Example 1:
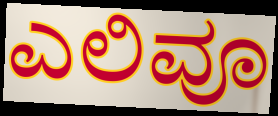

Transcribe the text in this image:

ಎಲಿವೂ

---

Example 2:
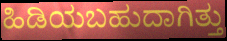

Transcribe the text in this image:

ಹಿಡಿಯಬಹುದಾಗಿತ್ತು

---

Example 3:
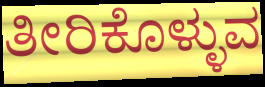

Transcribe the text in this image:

ತೀರಿಕೊಳ್ಳುವ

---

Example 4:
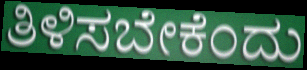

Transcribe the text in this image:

ತಿಳಿಸಬೇಕೆಂದು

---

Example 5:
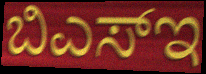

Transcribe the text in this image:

ಬಿಎಸ್ಇ